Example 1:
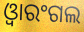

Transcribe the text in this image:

ଓ୍ୱାରଂଗଲ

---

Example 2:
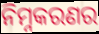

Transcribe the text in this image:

ନିମ୍ନକରଣର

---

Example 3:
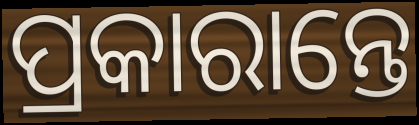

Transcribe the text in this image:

ପ୍ରକାରାନ୍ତେ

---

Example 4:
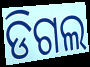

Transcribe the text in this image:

ଡିଗଲ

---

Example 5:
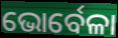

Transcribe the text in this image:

ଭୋର୍ବେଳା